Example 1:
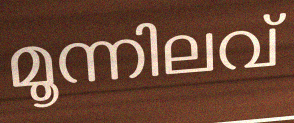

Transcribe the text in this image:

മൂന്നിലവ്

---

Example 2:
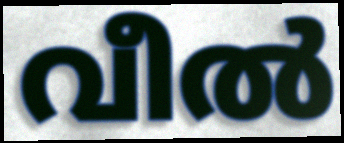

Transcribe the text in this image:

വീൽ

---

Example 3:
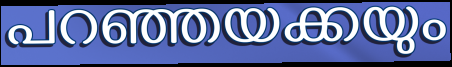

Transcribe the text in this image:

പറഞ്ഞയക്കയും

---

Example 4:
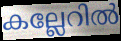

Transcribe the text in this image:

കല്ലേറിൽ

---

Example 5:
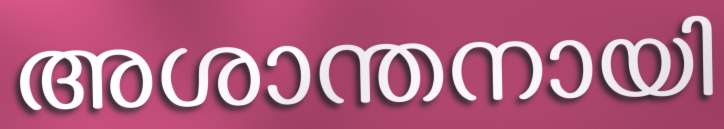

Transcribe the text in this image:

അശാന്തനായി